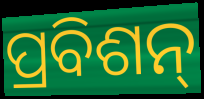
ପ୍ରବିଶନ୍